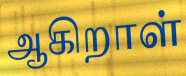
ஆகிறாள்